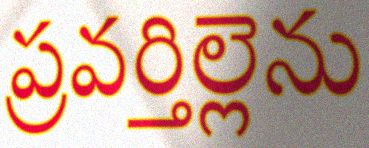
ప్రవర్తిల్లెను